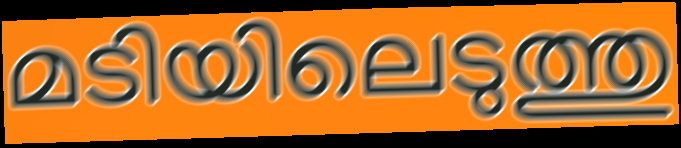
മടിയിലെടുത്തു